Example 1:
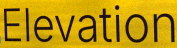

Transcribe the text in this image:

Elevation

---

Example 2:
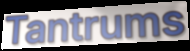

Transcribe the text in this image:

Tantrums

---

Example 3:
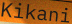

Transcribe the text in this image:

Kikani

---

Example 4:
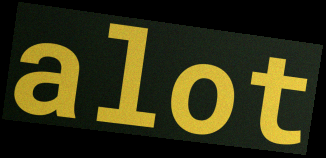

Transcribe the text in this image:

alot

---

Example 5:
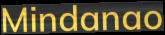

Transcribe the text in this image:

Mindanao